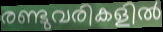
രണ്ടുവരികളിൽ